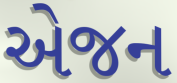
એજન